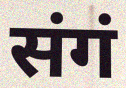
संगं